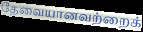
தேவையானவற்றைக்